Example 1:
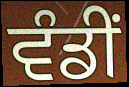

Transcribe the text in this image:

ਵੰਡੀਂ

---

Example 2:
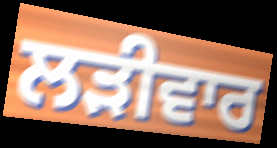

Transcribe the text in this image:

ਲੜੀਵਾਰ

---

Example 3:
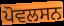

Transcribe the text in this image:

ਪੋਵਲਸਨ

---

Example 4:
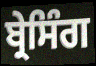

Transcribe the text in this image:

ਬ੍ਰੇਸਿੰਗ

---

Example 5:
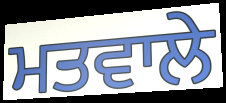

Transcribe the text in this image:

ਮਤਵਾਲੇ